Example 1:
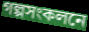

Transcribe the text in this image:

গল্পসংকলনে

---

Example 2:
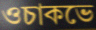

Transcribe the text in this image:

ওচাকভে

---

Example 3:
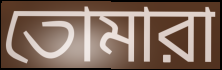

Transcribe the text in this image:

তোমারা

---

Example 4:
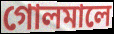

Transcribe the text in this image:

গোলমালে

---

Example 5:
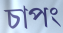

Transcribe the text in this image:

চাপং